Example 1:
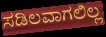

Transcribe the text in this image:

ಸಡಿಲವಾಗಲಿಲ್ಲ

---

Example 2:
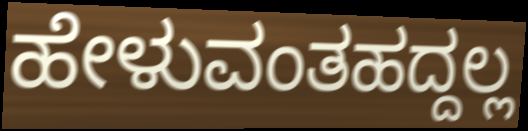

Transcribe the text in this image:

ಹೇಳುವಂತಹದ್ದಲ್ಲ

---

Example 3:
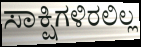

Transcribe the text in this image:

ಸಾಕ್ಷಿಗಳಿರಲಿಲ್ಲ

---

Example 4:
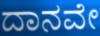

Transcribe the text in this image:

ದಾನವೇ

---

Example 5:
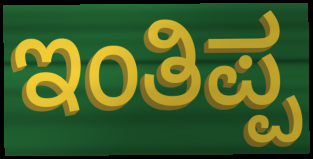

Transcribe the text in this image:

ಇಂತಿಪ್ಪ